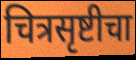
चित्रसृष्टीचा